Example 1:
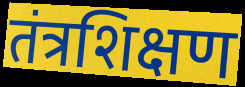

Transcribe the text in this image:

तंत्रशिक्षण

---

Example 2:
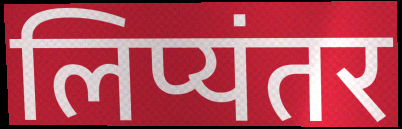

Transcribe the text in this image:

लिप्यंतर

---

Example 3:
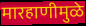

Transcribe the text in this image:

मारहाणीमुळे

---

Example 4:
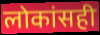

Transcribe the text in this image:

लोकांसही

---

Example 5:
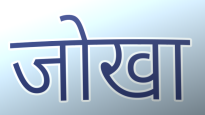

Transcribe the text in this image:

जोखा